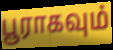
பூராகவும்